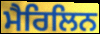
ਮੈਰਿਲਿਨ